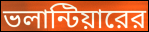
ভলান্টিয়ারের